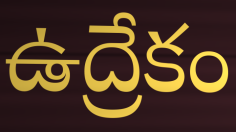
ఉద్రేకం